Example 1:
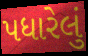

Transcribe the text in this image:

પધારેલું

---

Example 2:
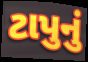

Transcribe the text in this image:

ટાપુનું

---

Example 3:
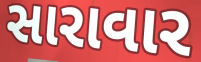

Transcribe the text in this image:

સારાવાર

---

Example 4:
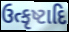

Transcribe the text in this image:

ઉત્કૃષ્ટાદિ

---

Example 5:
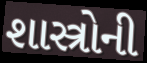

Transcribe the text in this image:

શાસ્ત્રોની